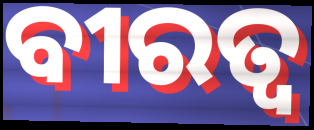
ବୀରତ୍ଵ